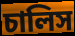
চালিস